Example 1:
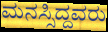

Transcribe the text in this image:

ಮನಸ್ಸಿದ್ದವರು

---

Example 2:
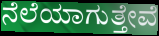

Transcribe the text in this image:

ನೆಲೆಯಾಗುತ್ತೇವೆ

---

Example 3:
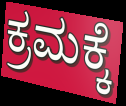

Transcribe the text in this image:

ಕ್ರಮಕ್ಕೆ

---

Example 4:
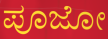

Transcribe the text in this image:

ಪೂಜೋ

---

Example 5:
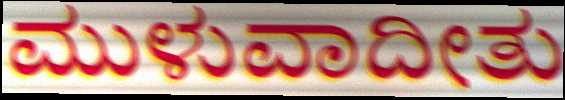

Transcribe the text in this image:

ಮುಳುವಾದೀತು